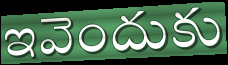
ఇవెందుకు